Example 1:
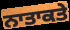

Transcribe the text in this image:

ਨਾਤਾਕਤੇ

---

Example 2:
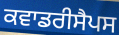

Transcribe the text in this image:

ਕਵਾਡਰੀਸੈਪਸ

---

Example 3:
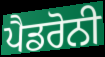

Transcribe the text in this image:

ਪੈਡਰੋਨੀ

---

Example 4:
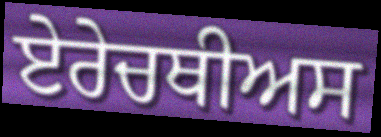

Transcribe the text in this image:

ਏਰੇਚਥੀਅਸ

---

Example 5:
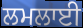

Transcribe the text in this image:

ਲਮਲਾਈ